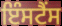
ਇੰਸਟੈਂਸ